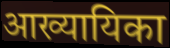
आख्यायिका